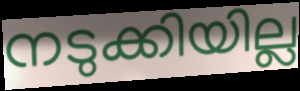
നടുക്കിയില്ല